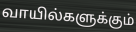
வாயில்களுக்கும்